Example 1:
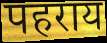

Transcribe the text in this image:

पहराय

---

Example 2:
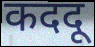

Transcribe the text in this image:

कददू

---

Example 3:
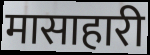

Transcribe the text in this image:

मासाहारी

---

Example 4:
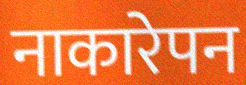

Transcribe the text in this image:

नाकारेपन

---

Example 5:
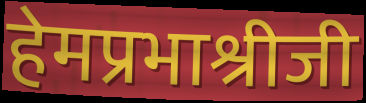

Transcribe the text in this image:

हेमप्रभाश्रीजी